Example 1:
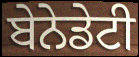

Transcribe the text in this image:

ਬੇਨੇਡੇਟੀ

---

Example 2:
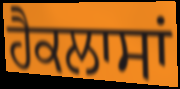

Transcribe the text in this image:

ਹੈਕਲਾਸਾਂ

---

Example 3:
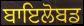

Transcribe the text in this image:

ਬਾਇਲੋਬਡ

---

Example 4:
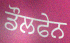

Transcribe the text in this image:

ਡੌਲਫੇਨ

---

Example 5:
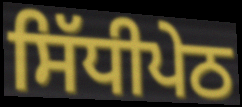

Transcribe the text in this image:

ਸਿੱਧੀਪੇਠ